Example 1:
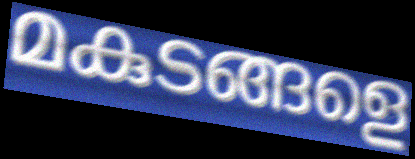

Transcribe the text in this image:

മകുടങ്ങളെ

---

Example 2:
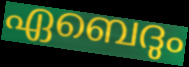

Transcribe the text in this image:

ഏബെദും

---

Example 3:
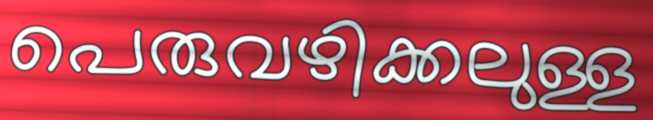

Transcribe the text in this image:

പെരുവഴിക്കലുള്ള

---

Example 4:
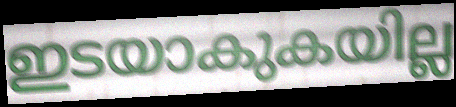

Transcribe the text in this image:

ഇടയാകുകയില്ല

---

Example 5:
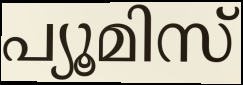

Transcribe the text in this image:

പ്യൂമിസ്